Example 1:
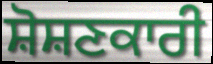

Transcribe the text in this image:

ਸ਼ੋਸ਼ਣਕਾਰੀ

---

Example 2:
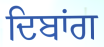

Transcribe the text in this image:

ਦਿਬਾਂਗ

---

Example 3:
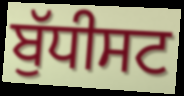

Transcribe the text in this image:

ਬੁੱਧੀਸਟ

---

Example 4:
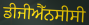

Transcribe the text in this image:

ਡੀਜੀਐੱਨਸੀਸੀ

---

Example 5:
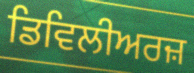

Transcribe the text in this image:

ਡਿਵਿਲੀਅਰਜ਼